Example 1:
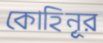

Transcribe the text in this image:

কোহিনূর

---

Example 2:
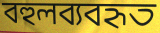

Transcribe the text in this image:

বহুলব্যবহৃত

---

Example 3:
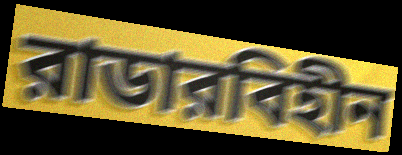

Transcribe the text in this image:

রাডারবিহীন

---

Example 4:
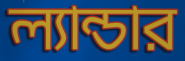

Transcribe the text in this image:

ল্যান্ডার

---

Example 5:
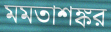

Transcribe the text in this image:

মমতাশঙ্কর